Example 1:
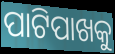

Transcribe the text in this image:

ପାଟିପାଖକୁ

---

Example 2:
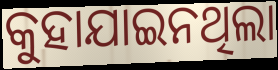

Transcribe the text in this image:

କୁହାଯାଇନଥିଲା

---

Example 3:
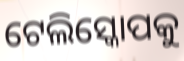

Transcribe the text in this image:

ଟେଲିସ୍କୋପକୁ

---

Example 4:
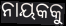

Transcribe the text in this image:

ନାୟକକୁ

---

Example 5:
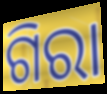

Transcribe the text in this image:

ଗିରା